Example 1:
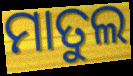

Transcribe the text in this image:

ମାତୁଲ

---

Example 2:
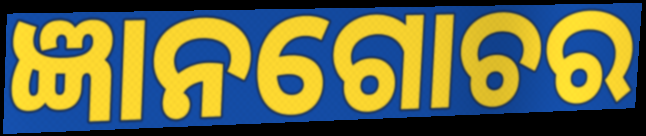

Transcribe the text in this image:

ଜ୍ଞାନଗୋଚର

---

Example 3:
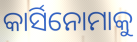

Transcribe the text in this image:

କାର୍ସିନୋମାକୁ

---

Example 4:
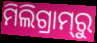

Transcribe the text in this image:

ମିଲିଗ୍ରାମ୍‌ରୁ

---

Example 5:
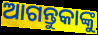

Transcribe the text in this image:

ଆଗନ୍ତୁକାଙ୍କୁ